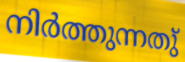
നിർത്തുന്നതു്